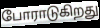
போராடுகிறது